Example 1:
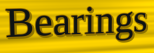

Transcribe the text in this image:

Bearings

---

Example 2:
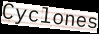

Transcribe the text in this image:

Cyclones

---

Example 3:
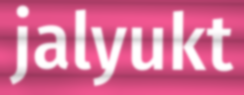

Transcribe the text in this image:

jalyukt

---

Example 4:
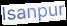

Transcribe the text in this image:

Isanpur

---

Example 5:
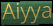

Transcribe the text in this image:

Aiyya